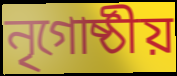
নৃগোষ্ঠীয়